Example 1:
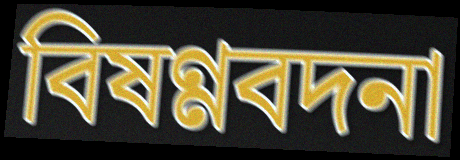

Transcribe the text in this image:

বিষণ্ণবদনা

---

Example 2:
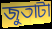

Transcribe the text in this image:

জুতাটা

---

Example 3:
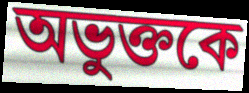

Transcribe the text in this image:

অভুক্তকে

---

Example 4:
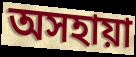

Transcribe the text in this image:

অসহায়া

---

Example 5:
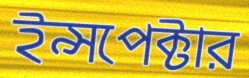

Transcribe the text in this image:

ইন্সপেক্টার